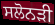
ਸਲੋਨੜੀ